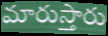
మారుస్తారు